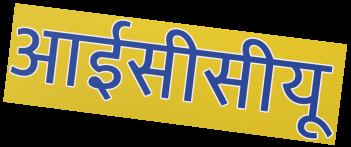
आईसीसीयू